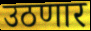
उठणार